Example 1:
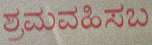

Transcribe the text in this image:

ಶ್ರಮವಹಿಸಬ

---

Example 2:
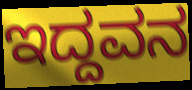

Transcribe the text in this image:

ಇದ್ದವನ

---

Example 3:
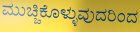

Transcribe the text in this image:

ಮುಚ್ಚಿಕೊಳ್ಳುವುದರಿಂದ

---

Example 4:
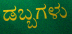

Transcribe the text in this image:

ಡಬ್ಬಗಳು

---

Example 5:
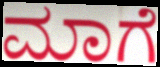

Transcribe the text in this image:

ಮಾಗೆ